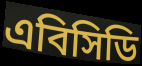
এবিসিডি